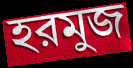
হরমুজ